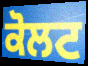
ਕੋਲਟ